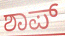
ಶಾಪ್